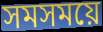
সমসময়ে